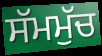
ਸੱਮਮੁੱਚ